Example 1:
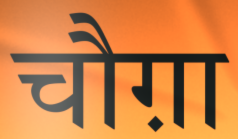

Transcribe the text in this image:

चौग़ा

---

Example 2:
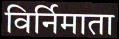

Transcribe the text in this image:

विर्निमाता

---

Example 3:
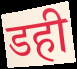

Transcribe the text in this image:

डही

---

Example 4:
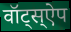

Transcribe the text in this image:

वॉट्स्ऐप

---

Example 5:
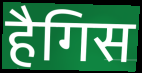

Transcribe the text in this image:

हैगिस